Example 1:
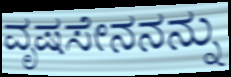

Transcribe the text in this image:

ವೃಷಸೇನನನ್ನು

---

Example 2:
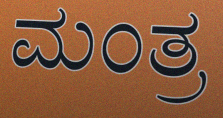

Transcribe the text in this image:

ಮಂತ್ರ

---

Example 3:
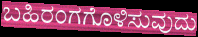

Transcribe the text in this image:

ಬಹಿರಂಗಗೊಳಿಸುವುದು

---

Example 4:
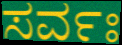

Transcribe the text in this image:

ಸರ್ವಃ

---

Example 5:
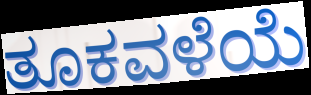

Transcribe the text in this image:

ತೂಕವಳೆಯೆ